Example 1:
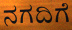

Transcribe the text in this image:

ನಗದಿಗೆ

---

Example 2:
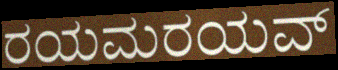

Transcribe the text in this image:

ರಯಮರಯವ್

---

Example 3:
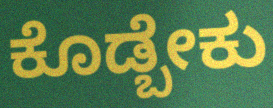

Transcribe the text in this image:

ಕೊಡ್ಬೇಕು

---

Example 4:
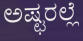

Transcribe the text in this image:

ಅಷ್ಟರಲ್ಲೆ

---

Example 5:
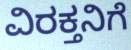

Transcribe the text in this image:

ವಿರಕ್ತನಿಗೆ